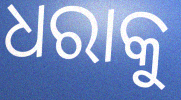
ଧରାକୁ